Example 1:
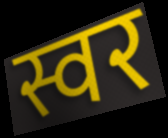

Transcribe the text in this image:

स्‍वर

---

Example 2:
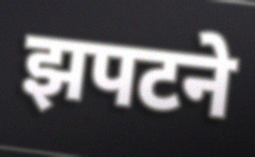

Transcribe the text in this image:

झपटने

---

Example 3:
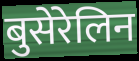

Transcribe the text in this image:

बुसेरेलिन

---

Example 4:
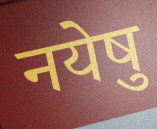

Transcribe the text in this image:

नयेषु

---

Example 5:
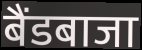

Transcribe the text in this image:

बैंडबाजा